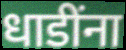
धाडींना